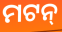
ମଟନ୍